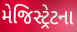
મેજિસ્ટ્રેટના